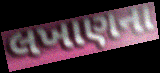
લખાણના